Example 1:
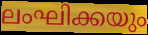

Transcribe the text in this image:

ലംഘിക്കയും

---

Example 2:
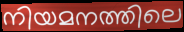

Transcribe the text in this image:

നിയമനത്തിലെ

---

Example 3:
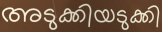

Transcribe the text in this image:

അടുക്കിയടുക്കി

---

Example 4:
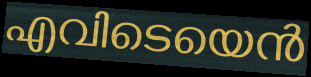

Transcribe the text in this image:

എവിടെയെൻ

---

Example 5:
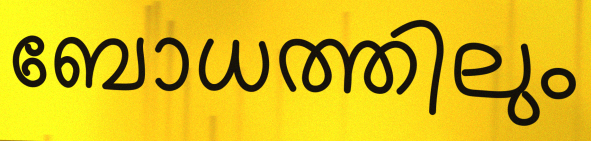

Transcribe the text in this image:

ബോധത്തിലും